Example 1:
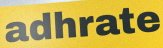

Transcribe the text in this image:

adhrate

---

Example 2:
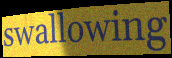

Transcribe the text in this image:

swallowing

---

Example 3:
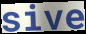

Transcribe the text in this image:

sive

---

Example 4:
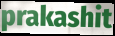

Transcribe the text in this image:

prakashit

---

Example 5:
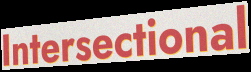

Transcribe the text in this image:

Intersectional